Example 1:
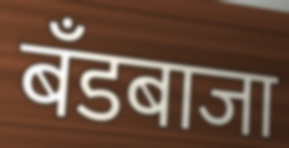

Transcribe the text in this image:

बँडबाजा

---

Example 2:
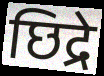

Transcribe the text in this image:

छिद्रे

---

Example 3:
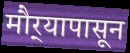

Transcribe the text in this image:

मौर्यापासून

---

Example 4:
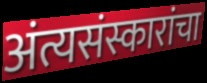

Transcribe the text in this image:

अंत्यसंस्कारांचा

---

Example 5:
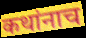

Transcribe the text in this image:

कथांनाच